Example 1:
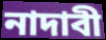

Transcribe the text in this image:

নাদাবী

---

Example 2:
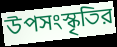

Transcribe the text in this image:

উপসংস্কৃতির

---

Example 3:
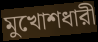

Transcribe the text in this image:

মুখোশধারী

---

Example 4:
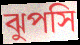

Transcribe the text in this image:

ঝুপসি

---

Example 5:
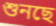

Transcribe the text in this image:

শুনছে